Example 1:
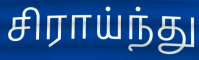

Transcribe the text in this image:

சிராய்ந்து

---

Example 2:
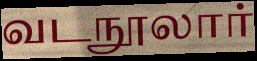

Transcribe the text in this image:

வடநூலார்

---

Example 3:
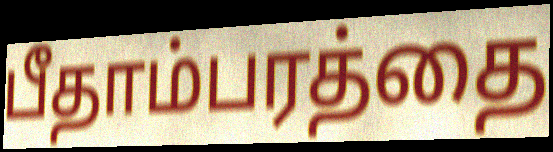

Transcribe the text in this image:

பீதாம்பரத்தை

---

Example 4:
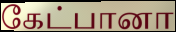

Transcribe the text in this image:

கேட்பானா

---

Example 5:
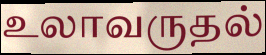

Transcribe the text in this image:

உலாவருதல்